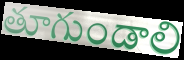
తూగుండాలి